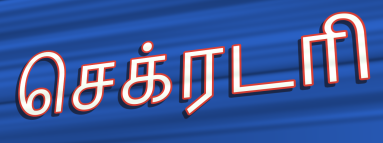
செக்ரடரி